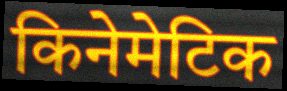
किनेमेटिक